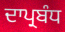
ਦਾਪ੍ਰਬੰਧ